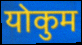
योकुम